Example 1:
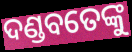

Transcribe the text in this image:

ଦଣ୍ଡବତେଙ୍କୁ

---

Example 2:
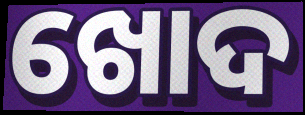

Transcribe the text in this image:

ଖୋଦ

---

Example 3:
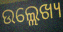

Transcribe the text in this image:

ଉଲ୍ଲେଖ୍ୟ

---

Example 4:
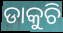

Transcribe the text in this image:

ଡାକୁଚି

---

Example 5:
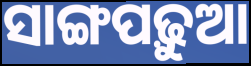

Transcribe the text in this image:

ସାଙ୍ଗପଢ଼ୁଆ